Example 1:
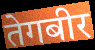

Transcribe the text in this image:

तेगबीर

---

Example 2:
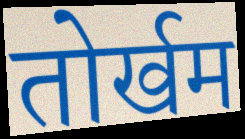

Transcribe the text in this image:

तोर्खम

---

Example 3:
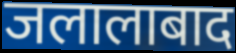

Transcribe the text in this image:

जलालाबाद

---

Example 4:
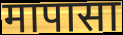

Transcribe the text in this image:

मापासा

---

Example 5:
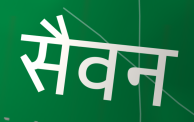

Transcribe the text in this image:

सैवन